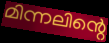
മിന്നലിന്റെ